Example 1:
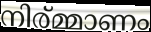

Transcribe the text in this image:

നിര്മ്മാണം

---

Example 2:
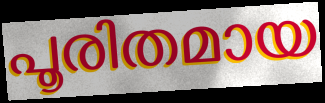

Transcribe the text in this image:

പൂരിതമായ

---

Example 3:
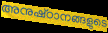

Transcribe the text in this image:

അനുഷ്‌ഠാനങ്ങളുടെ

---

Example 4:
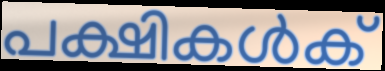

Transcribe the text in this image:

പക്ഷികൾക്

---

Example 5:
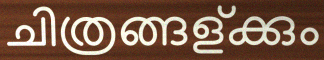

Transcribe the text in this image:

ചിത്രങ്ങള്ക്കും